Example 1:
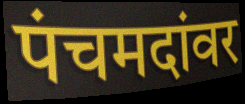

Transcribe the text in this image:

पंचमदांवर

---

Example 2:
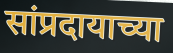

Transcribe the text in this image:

सांप्रदायाच्या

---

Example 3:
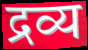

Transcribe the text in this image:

द्रव्य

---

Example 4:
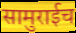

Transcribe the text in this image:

सामुराईच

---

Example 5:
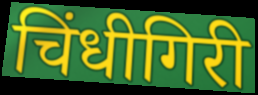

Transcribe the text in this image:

चिंधीगिरी